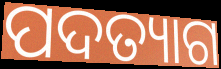
ପଦତ୍ୟାଗ